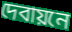
দেবায়নে